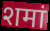
शमां